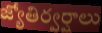
జ్యోతిర్వర్షాలు